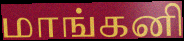
மாங்கனி